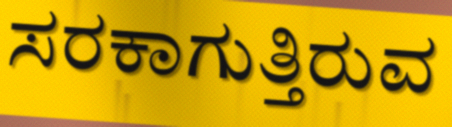
ಸರಕಾಗುತ್ತಿರುವ